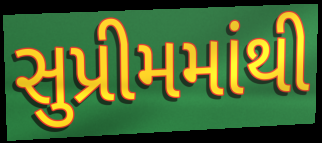
સુપ્રીમમાંથી